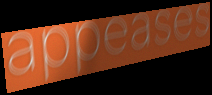
appeases